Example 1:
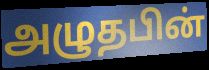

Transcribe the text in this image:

அழுதபின்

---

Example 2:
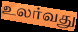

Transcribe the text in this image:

உலர்வது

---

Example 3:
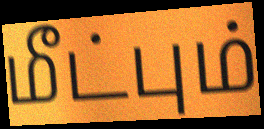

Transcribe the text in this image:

மீட்பும்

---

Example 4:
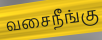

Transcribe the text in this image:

வசைநீங்கு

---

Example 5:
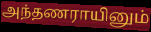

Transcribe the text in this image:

அந்தணராயினும்